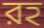
রহ